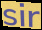
sir